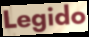
Legido